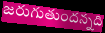
జరుగుతుందన్నది